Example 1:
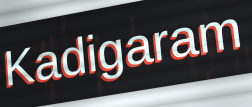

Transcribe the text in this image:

Kadigaram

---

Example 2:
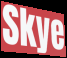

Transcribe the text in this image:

Skye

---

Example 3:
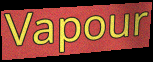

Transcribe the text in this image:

Vapour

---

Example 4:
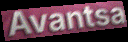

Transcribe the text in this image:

Avantsa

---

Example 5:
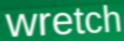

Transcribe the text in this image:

wretch